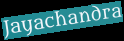
Jayachandra